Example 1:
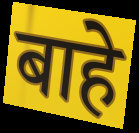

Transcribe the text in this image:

बाहे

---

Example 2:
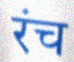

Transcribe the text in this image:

रंच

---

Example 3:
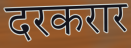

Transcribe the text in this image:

दरकरार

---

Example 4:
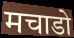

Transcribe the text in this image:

मचाडो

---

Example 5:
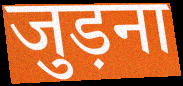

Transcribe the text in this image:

जुड़ना